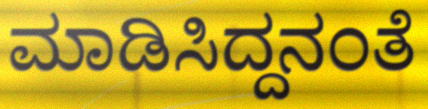
ಮಾಡಿಸಿದ್ದನಂತೆ